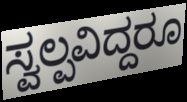
ಸ್ವಲ್ಪವಿದ್ದರೂ